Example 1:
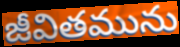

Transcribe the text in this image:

జీవితమును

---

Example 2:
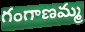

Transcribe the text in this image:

గంగాణమ్మ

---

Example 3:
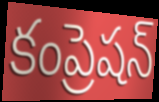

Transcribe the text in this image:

కంప్రెషన్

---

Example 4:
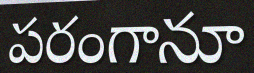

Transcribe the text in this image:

పరంగానూ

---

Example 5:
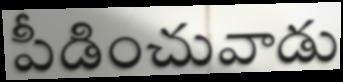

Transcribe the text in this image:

పీడించువాడు